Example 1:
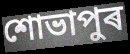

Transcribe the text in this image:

শোভাপুৰ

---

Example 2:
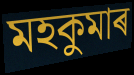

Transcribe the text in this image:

মহকুমাৰ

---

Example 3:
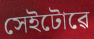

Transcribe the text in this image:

সেইটোৱে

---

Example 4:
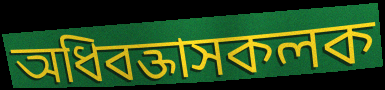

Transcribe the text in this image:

অধিবক্তাসকলক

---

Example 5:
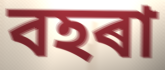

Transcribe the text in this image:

বহৰা